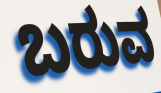
ಬರುವ